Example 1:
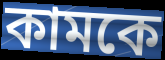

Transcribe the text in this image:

কামকে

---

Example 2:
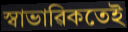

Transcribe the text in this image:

স্বাভাৱিকতেই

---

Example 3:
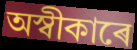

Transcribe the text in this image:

অস্বীকাৰে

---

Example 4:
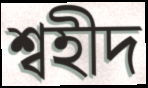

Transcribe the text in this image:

শ্বহীদ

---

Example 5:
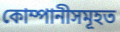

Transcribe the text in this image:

কোম্পানীসমূহত